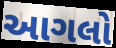
આગલો